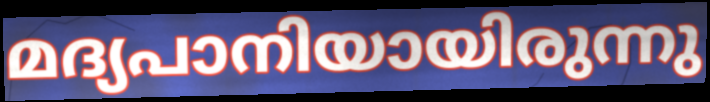
മദ്യപാനിയായിരുന്നു